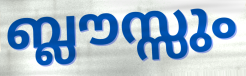
ബ്ലൗസ്സും